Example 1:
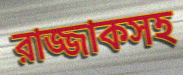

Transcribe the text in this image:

রাজ্জাকসহ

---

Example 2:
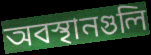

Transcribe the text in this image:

অবস্থানগুলি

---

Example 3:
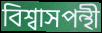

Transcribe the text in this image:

বিশ্বাসপন্থী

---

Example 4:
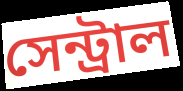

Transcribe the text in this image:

সেন্ট্রাল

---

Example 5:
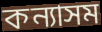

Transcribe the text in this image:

কন্যাসম